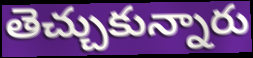
తెచ్చుకున్నారు